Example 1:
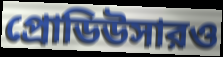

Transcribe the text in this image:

প্রোডিউসারও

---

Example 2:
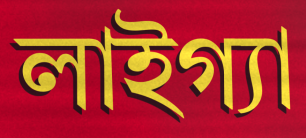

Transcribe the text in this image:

লাইগ্যা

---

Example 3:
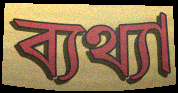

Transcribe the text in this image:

ব্যথ্যা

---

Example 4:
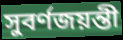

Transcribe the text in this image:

সুবর্ণজয়ন্তী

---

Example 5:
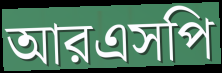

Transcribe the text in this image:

আরএসপি